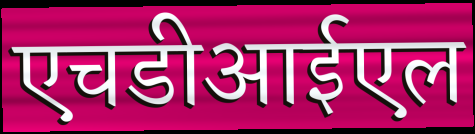
एचडीआईएल